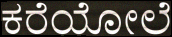
ಕರೆಯೋಲೆ